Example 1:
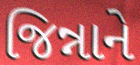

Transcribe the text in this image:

જિન્નાને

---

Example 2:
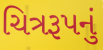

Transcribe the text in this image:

ચિત્રરૂપનું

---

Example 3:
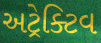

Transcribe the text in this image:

અટ્રેક્ટિવ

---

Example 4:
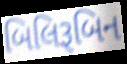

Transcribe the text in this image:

બિલિરૂબિન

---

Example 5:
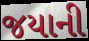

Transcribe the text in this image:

જયાની